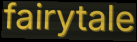
fairytale